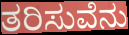
ತರಿಸುವೆನು